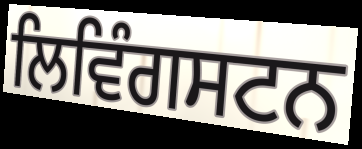
ਲਿਵਿੰਗਸਟਨ